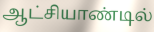
ஆட்சியாண்டில்